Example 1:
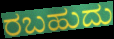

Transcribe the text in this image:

ರಬಹುದು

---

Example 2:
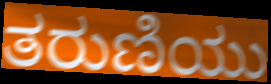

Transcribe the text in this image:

ತರುಣಿಯು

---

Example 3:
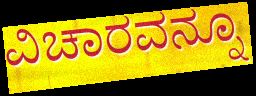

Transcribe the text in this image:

ವಿಚಾರವನ್ನೂ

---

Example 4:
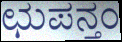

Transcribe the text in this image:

ಛುಪನ್ತಂ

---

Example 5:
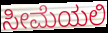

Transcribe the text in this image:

ಸೀಮೆಯಲಿ